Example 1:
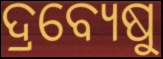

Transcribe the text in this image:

ଦ୍ରବ୍ୟେଷୁ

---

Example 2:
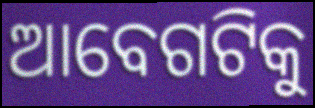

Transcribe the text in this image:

ଆବେଗଟିକୁ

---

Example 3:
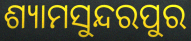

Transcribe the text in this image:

ଶ୍ୟାମସୁନ୍ଦରପୁର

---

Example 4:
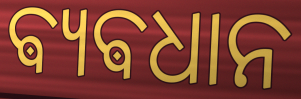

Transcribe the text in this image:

ଵ୍ୟଵଧାନ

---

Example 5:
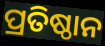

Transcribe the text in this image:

ପ୍ରତିଷ୍ଠାନ